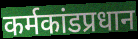
कर्मकांडप्रधान